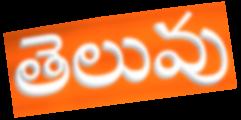
తెలువు